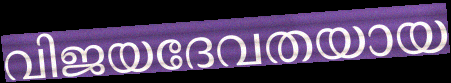
വിജയദേവതയായ